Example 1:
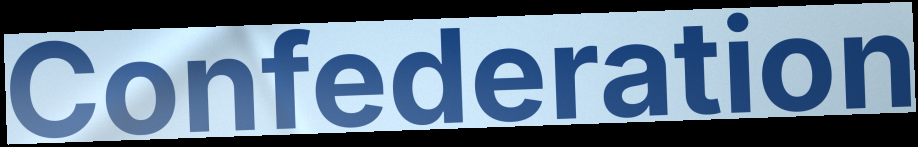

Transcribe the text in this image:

Confederation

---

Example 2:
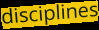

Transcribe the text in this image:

disciplines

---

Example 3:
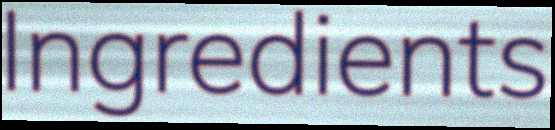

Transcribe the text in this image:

Ingredients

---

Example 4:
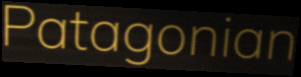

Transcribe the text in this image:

Patagonian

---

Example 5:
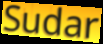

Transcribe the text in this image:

Sudar